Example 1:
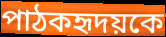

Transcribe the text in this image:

পাঠকহৃদয়কে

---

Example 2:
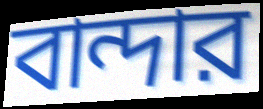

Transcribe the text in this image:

বান্দার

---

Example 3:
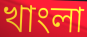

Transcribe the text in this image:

খাংলা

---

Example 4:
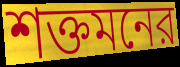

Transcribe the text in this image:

শক্তমনের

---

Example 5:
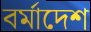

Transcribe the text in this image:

বর্মাদেশ